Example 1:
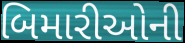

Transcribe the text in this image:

બિમારીઓની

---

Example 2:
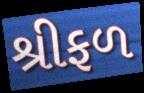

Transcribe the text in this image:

શ્રીફળ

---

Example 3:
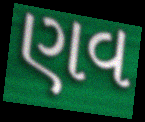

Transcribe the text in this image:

ણવ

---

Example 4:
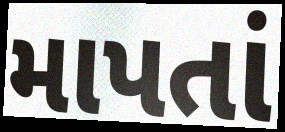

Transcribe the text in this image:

માપતાં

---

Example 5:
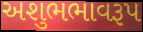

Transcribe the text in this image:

અશુભભાવરૂપ